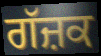
ਗੱਜ਼ਕ